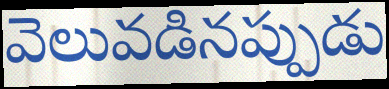
వెలువడినప్పుడు